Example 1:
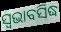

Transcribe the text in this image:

ସ୍ଵଭାବସିଦ୍ଧ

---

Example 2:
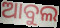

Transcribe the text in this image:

ଆବୁଲ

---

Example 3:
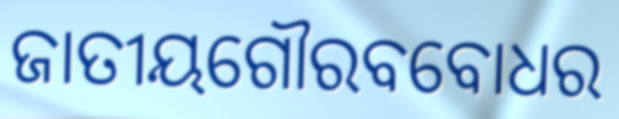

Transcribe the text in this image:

ଜାତୀୟଗୌରବବୋଧର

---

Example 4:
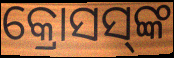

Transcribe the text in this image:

କ୍ରୋସସ୍‌ଙ୍କ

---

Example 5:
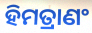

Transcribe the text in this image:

ହିମତ୍ରାଣଂ